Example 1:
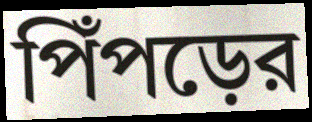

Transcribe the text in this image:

পিঁপড়ের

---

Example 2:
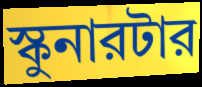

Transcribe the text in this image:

স্কুনারটার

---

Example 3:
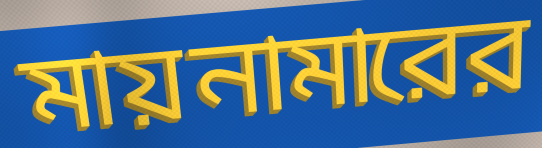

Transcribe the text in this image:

মায়নামারের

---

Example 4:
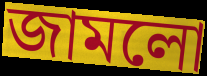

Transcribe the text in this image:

জামলো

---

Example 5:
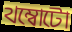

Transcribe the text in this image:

থম্বোটো